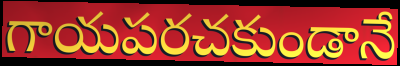
గాయపరచకుండానే